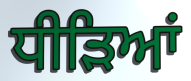
ਧੀੜਿਆਂ